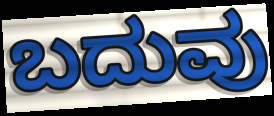
ಬದುವು